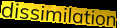
dissimilation